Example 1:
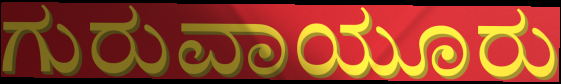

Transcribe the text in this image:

ಗುರುವಾಯೂರು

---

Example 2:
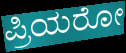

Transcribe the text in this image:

ಪ್ರಿಯರೋ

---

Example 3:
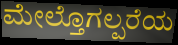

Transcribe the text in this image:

ಮೇಲ್ತೊಗಲ್ಪರೆಯ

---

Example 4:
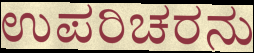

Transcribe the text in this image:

ಉಪರಿಚರನು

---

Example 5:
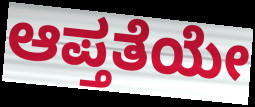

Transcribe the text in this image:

ಆಪ್ತತೆಯೇ